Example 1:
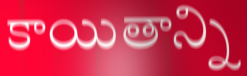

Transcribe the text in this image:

కాయితాన్ని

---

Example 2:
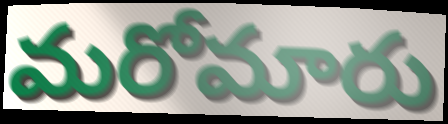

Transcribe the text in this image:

మరోమారు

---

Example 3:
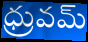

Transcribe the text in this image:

ధ్రువమ్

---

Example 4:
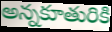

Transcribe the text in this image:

అన్నకూతురికి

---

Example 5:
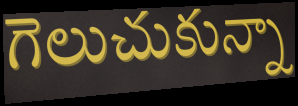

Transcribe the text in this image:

గెలుచుకున్నా